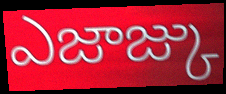
ఎజాజ్కు